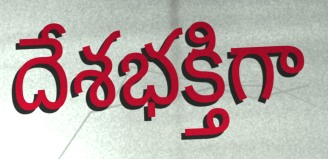
దేశభక్తిగా